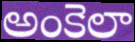
అంకెలా